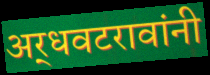
अर्धवटरावांनी